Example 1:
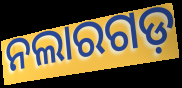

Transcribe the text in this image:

ନଲାରଗଡ଼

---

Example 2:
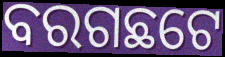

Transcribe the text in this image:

ବରଗଛଟେ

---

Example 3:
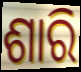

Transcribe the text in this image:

ଶାରି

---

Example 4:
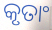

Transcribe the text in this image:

କୃତାଂ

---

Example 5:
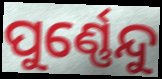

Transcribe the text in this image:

ପୁର୍ଣ୍ଣେନ୍ଦୁ